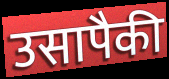
उसापैकी